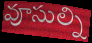
వూసుల్ని